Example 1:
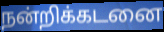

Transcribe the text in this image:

நன்றிக்கடனை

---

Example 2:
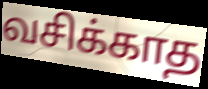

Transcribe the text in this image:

வசிக்காத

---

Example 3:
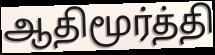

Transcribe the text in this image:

ஆதிமூர்த்தி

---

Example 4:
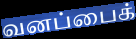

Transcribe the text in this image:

வனப்பைக்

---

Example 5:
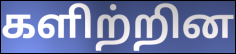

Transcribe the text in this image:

களிற்றின